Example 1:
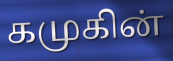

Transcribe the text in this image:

கமுகின்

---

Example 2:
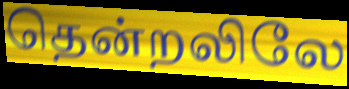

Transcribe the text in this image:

தென்றலிலே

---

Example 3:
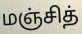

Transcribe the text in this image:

மஞ்சித்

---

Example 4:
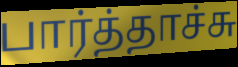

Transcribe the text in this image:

பார்த்தாச்சு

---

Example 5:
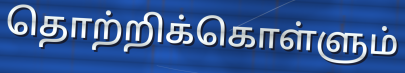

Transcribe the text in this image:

தொற்றிக்கொள்ளும்